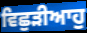
ਵਿਛੁੜੀਆਹੁ